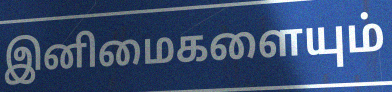
இனிமைகளையும்